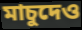
মাচুদেও